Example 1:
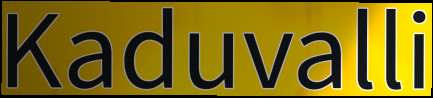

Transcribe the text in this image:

Kaduvalli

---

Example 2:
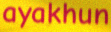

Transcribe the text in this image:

ayakhun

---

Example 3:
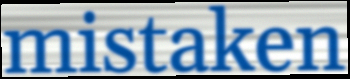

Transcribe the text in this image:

mistaken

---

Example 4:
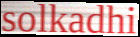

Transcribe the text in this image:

solkadhi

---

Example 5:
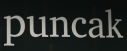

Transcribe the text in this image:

puncak